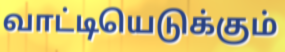
வாட்டியெடுக்கும்